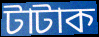
টাটাক